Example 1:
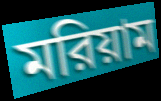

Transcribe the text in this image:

মরিয়াম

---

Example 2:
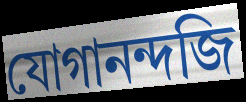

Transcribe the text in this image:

যোগানন্দজি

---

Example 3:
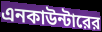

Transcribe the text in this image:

এনকাউন্টারের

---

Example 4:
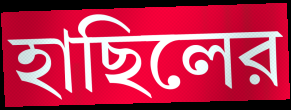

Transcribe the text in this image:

হাছিলের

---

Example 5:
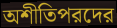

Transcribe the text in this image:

অশীতিপরদের